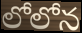
లోలోన